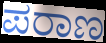
ಪರಾಣ